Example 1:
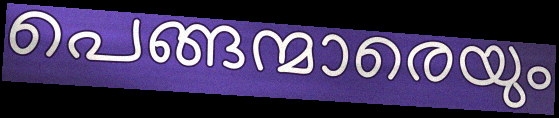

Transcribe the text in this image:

പെങ്ങന്മാരെയും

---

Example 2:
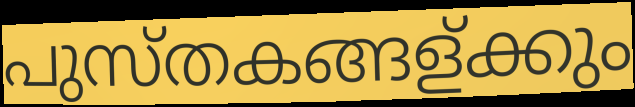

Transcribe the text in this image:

പുസ്തകങ്ങള്ക്കും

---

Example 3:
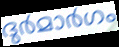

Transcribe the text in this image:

ദുർമാർഗം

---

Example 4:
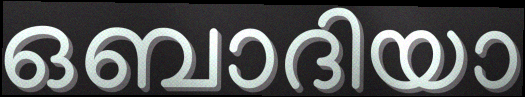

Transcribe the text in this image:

ഒബാദിയാ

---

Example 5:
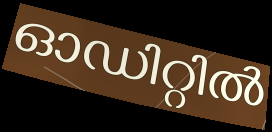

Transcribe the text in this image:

ഓഡിറ്റിൽ